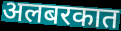
अलबरकात